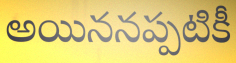
అయిననప్పటికీ